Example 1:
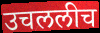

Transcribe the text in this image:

उचललीच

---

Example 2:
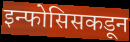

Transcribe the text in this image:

इन्फोसिसकडून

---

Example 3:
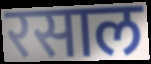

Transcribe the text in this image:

रसाल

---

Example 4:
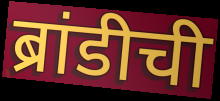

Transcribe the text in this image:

ब्रांडीची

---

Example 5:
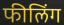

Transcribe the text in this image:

फीलिंग